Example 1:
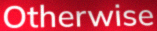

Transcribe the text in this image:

Otherwise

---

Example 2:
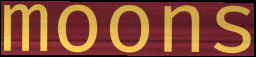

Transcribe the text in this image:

moons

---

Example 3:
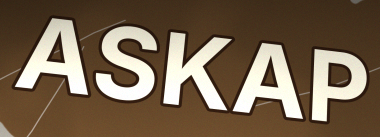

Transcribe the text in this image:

ASKAP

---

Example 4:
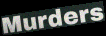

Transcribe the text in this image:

Murders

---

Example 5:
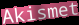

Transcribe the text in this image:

Akismet